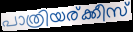
പാത്രിയര്ക്കീസ്